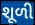
શૂળી